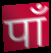
पाँ